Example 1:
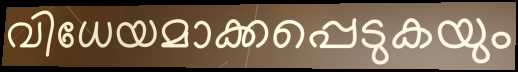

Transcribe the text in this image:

വിധേയമാക്കപ്പെടുകയും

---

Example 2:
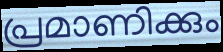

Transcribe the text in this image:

പ്രമാണിക്കും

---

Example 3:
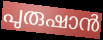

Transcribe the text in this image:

പുരുഷാൻ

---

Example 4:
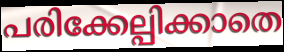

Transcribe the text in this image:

പരിക്കേല്പിക്കാതെ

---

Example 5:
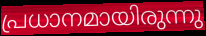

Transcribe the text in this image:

പ്രധാനമായിരുന്നു